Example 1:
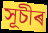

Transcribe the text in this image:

সূচীৰ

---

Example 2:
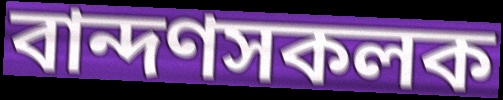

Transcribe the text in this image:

বান্দণসকলক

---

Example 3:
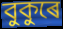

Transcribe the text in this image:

বুকুৰে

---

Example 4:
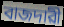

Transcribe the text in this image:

বাজদাৱী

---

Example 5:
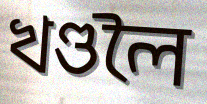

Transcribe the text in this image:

খণ্ডলৈ